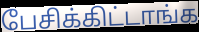
பேசிக்கிட்டாங்க